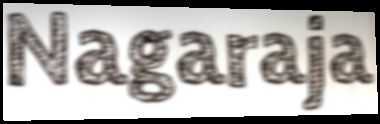
Nagaraja